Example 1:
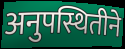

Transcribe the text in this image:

अनुपस्थितीने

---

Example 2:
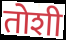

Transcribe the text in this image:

तोशी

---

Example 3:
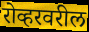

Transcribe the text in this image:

रोव्हरवरील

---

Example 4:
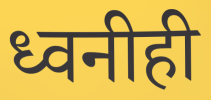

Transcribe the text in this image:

ध्वनीही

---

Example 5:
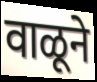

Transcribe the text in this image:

वाळूने